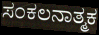
ಸಂಕಲನಾತ್ಮಕ